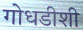
गोधडीशी